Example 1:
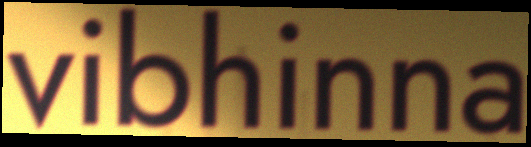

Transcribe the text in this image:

vibhinna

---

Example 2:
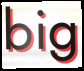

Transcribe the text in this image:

big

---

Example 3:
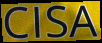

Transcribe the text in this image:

CISA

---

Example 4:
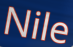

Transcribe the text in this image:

Nile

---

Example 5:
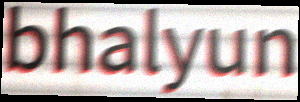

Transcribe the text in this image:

bhalyun